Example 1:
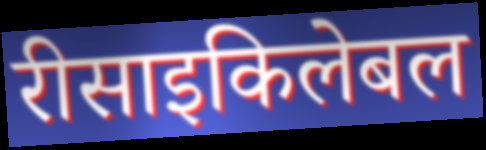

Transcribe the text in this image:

रीसाइकिलेबल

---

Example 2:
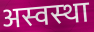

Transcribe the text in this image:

अस्वस्था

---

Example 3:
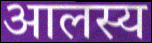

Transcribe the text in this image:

आलस्‍य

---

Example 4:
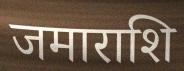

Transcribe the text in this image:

जमाराशि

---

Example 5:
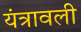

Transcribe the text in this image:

यंत्रावली